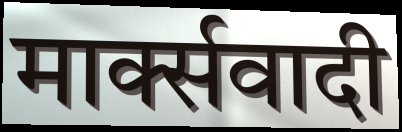
मार्क्सवादी